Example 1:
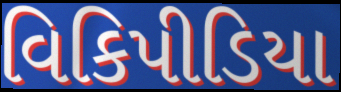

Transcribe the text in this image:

વિકિપીડિયા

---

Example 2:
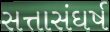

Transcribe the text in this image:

સત્તાસંઘર્ષ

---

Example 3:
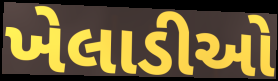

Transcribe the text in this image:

ખેલાડીઓ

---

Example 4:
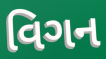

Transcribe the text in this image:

વિગન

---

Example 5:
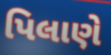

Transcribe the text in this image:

પિલાણે